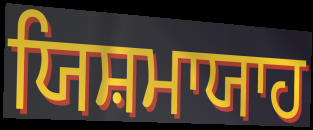
ਯਿਸ਼ਮਾਯਾਹ